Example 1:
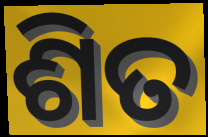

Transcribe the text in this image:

ଶିତ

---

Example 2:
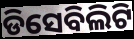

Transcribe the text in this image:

ଡିସେବିଲିଟି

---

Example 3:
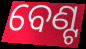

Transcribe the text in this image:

ବେଣ୍ଟ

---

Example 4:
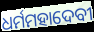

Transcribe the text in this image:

ଧର୍ମମହାଦେବୀ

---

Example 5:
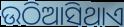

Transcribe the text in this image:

ଉଠିଆସିଥାଏ